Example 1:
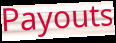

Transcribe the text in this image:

Payouts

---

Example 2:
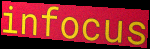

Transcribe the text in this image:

infocus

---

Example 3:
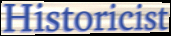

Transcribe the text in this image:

Historicist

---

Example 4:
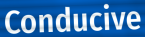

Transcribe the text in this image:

Conducive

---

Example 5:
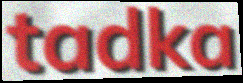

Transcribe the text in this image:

tadka